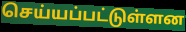
செய்யப்பட்டுள்ளன